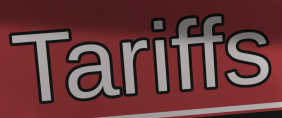
Tariffs